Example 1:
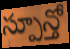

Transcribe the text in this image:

స్పూన్తో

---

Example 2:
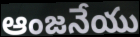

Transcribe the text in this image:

ఆంజనేయు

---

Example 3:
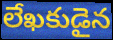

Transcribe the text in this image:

లేఖకుడైన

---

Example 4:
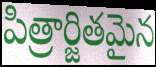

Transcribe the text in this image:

పిత్రార్జితమైన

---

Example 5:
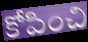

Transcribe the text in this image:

కోపించి